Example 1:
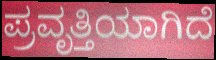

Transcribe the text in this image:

ಪ್ರವೃತ್ತಿಯಾಗಿದೆ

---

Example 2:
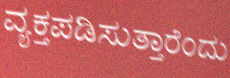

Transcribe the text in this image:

ವ್ಯಕ್ತಪಡಿಸುತ್ತಾರೆಂದು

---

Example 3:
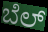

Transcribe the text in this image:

ಬೆಲ್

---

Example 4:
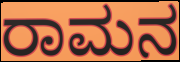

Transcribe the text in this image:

ರಾಮನ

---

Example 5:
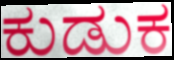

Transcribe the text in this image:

ಕುಡುಕ